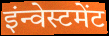
इंन्वेस्टमेंट